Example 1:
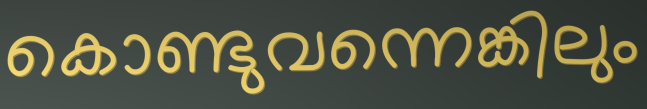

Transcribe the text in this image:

കൊണ്ടുവന്നെങ്കിലും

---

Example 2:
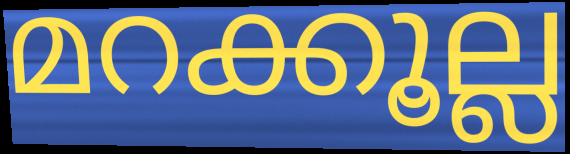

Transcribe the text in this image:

മറക്കൂല്ല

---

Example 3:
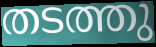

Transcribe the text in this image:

തടത്തു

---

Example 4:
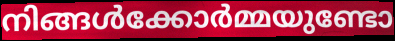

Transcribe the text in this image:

നിങ്ങൾക്കോർമ്മയുണ്ടോ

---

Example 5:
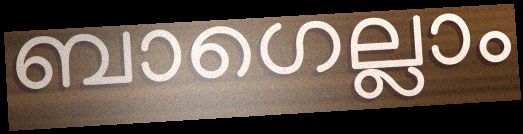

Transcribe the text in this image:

ബാഗെല്ലാം